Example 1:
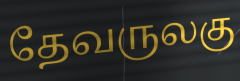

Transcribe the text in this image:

தேவருலகு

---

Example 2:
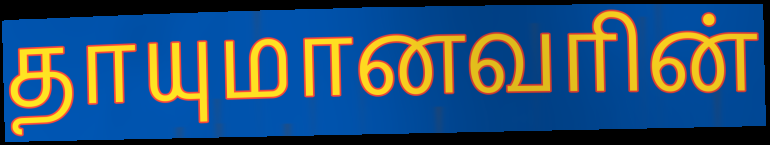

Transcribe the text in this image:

தாயுமானவரின்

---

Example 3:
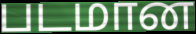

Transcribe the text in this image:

படமான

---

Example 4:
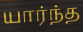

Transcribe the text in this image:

யார்ந்த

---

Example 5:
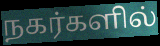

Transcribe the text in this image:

நகர்களில்